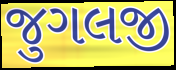
જુગલજી